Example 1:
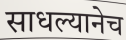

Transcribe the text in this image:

साधल्यानेच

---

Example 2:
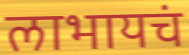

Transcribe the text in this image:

लाभायचं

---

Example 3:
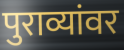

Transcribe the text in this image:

पुराव्यांवर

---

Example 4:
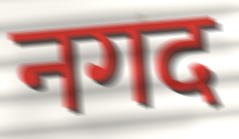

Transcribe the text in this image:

नगद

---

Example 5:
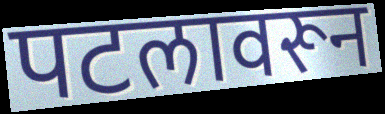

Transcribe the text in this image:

पटलावरून